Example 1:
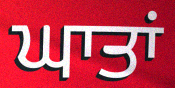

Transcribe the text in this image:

ਘਾਤਾਂ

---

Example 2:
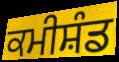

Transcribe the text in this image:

ਕਮੀਸ਼ੰਡ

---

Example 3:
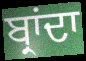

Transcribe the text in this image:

ਬ੍ਰਾਂਦਾ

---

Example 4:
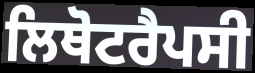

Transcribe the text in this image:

ਲਿਥੋਟਰੈਪਸੀ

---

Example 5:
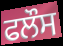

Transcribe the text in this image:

ਫਲੌਸ